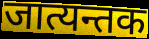
जात्यन्तक